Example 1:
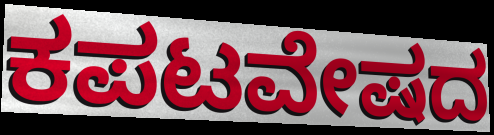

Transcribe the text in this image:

ಕಪಟವೇಷದ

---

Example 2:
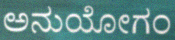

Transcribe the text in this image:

ಅನುಯೋಗಂ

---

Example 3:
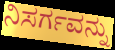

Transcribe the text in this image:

ನಿಸರ್ಗವನ್ನು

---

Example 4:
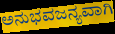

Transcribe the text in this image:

ಅನುಭವಜನ್ಯವಾಗಿ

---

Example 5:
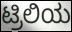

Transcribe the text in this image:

ಟ್ರಿಲಿಯ